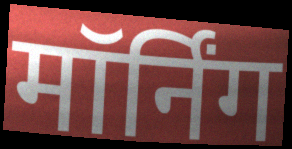
मॉर्निंग